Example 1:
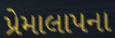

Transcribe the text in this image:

પ્રેમાલાપના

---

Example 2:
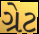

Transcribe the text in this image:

ગ્રેટ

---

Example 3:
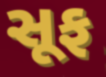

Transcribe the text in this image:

સૂફ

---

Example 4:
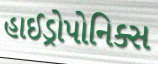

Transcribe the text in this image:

હાઈડ્રોપોનિક્સ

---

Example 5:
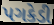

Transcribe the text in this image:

પગકેડી